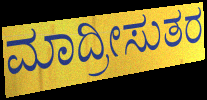
ಮಾದ್ರೀಸುತರ